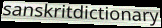
sanskritdictionary